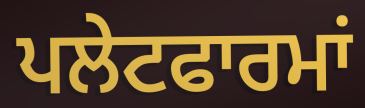
ਪਲੇਟਫਾਰਮਾਂ